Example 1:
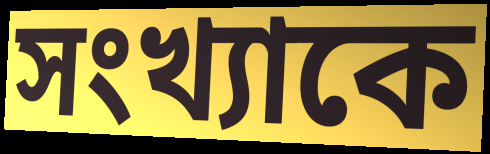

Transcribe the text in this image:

সংখ্যাকে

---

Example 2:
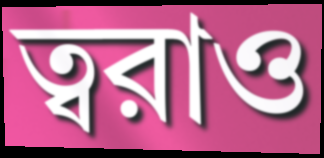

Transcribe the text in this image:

ত্বরাও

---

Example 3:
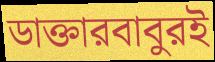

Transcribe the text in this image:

ডাক্তারবাবুরই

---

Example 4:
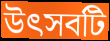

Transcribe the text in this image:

উৎসবটি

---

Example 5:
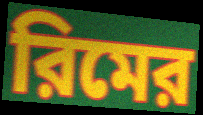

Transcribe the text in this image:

রিমের